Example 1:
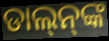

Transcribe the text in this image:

ଡାଲ୍‌ନ୍‌ଙ୍କ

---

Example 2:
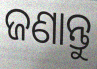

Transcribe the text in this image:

ଜଣାନ୍ତୁ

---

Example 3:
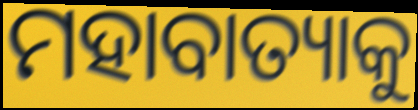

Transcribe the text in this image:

ମହାବାତ୍ୟାକୁ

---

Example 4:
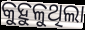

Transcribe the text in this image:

କୁହୁଳୁଥିଲା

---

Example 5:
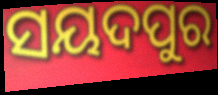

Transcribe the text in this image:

ସୟଦପୁର